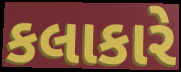
કલાકારે